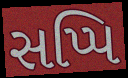
સપ્પિ